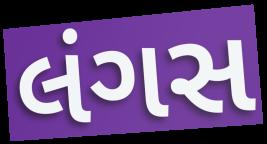
લંગસ